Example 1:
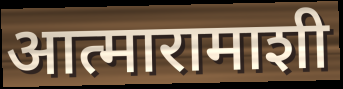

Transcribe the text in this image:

आत्मारामाशी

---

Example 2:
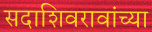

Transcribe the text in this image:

सदाशिवरावांच्या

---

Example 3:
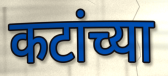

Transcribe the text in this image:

कटांच्या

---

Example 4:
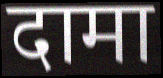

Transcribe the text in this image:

दामा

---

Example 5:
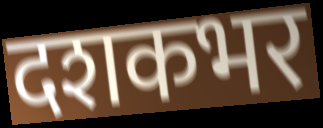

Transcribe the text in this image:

दशकभर